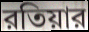
রতিয়ার